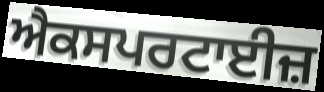
ਐਕਸਪਰਟਾਈਜ਼